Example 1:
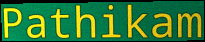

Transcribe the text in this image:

Pathikam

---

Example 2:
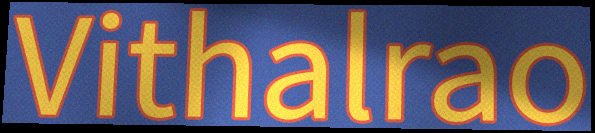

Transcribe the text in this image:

Vithalrao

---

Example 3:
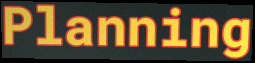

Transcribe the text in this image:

Planning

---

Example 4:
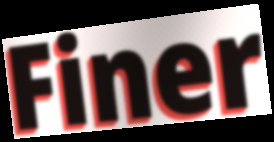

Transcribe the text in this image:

Finer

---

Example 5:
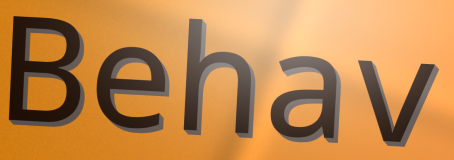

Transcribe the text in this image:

Behav